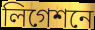
লিগেশনে